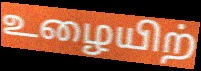
உழையிற்